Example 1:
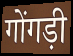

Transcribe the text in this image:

गोंगड़ी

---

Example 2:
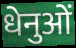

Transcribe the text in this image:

धेनुओं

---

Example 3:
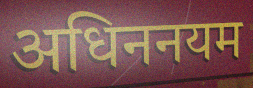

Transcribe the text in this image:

अधिननयम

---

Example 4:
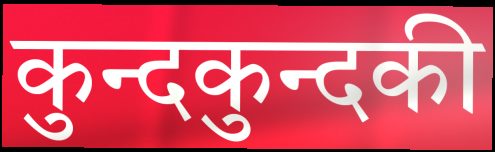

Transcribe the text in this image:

कुन्दकुन्दकी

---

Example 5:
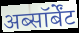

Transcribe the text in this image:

अब्सॉर्बेंट